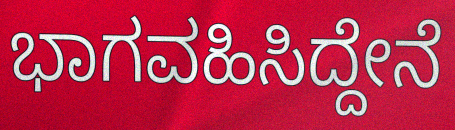
ಭಾಗವಹಿಸಿದ್ದೇನೆ